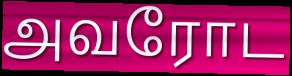
அவரோட